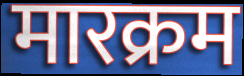
मारक्रम